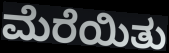
ಮೆರೆಯಿತು